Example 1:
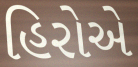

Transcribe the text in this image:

હિરોએ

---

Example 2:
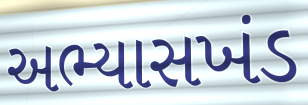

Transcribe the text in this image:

અભ્યાસખંડ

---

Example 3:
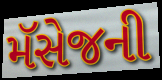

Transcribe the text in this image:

મૅસેજની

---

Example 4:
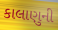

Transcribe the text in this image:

કાલાણુની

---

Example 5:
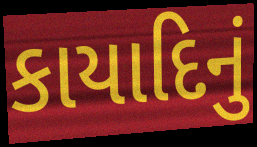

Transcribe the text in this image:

કાયાદિનું